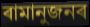
ৰামানুজনৰ